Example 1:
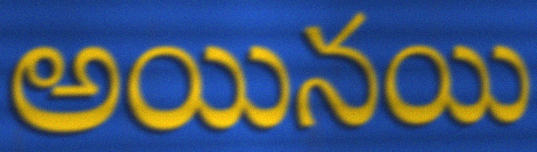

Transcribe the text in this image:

అయినయి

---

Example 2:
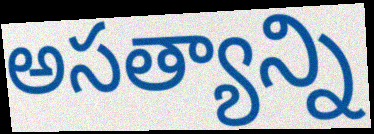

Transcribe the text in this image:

అసత్యాన్ని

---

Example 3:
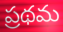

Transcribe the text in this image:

ప్రథమ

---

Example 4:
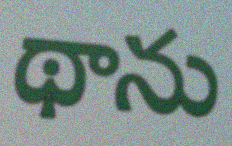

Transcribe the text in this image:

థాను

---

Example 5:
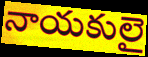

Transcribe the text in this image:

నాయకులై